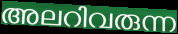
അലറിവരുന്ന